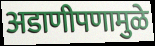
अडाणीपणामुळे